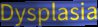
Dysplasia